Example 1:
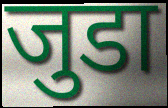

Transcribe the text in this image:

जुडा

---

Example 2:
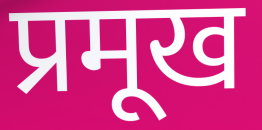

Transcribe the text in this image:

प्रमूख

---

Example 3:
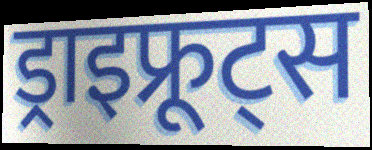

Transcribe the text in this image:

ड्राइफ्रूट्स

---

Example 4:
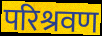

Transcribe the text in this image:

परिश्रवण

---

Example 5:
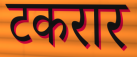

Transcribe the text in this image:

टकरार